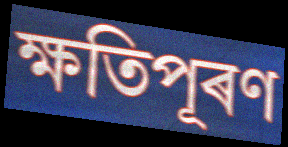
ক্ষতিপূৰণ